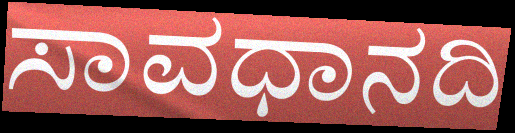
ಸಾವಧಾನದಿ